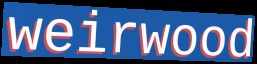
weirwood